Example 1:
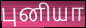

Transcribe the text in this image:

புனியா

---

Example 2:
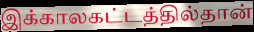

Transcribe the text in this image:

இக்காலகட்டத்தில்தான்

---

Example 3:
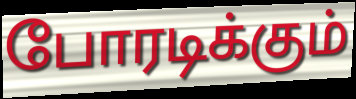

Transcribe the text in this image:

போரடிக்கும்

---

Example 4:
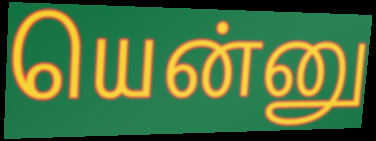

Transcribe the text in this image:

யென்னு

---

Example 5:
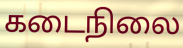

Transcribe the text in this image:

கடைநிலை